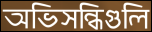
অভিসন্ধিগুলি